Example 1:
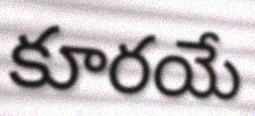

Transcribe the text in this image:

కూరయే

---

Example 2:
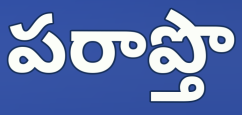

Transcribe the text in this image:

పరాప్తొ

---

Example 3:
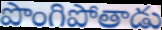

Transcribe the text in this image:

పొంగిపోతాడు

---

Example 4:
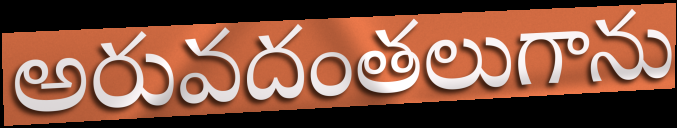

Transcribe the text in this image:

అరువదంతలుగాను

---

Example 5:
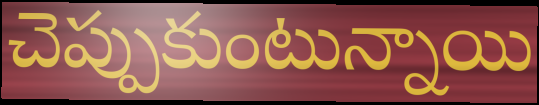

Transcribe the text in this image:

చెప్పుకుంటున్నాయి